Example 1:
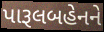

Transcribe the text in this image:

પારૂલબહેનને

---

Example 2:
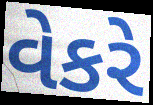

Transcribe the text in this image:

વેકરે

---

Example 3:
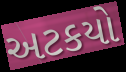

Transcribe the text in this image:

અટકયો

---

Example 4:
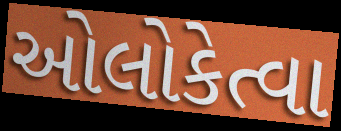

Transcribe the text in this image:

ઓલોકેત્વા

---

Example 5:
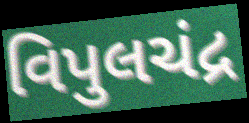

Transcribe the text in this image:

વિપુલચંદ્ર